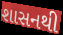
શાસનથી